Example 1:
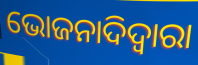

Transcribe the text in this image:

ଭୋଜନାଦିଦ୍ୱାରା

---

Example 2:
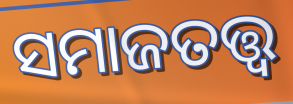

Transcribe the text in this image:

ସମାଜତତ୍ତ୍ୱ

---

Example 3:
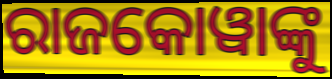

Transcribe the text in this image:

ରାଜକୋୱାଙ୍କୁ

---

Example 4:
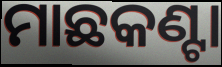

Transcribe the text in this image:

ମାଛକଣ୍ଟା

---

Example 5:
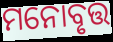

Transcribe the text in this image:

ମନୋବୃତ୍ତ